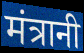
मंत्रानी